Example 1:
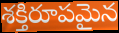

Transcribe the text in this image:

శక్తిరూపమైన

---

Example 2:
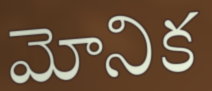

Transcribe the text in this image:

మోనిక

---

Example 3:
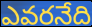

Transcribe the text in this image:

ఎవరనేది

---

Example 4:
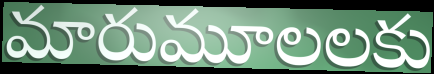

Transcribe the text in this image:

మారుమూలలకు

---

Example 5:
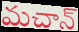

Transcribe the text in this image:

మచాన్